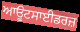
ਆਊਟਸਾਈਡਰਜ਼